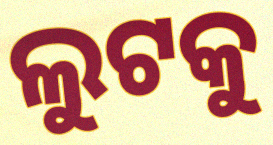
ଲୁଟକୁ